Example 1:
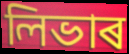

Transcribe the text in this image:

লিভাৰ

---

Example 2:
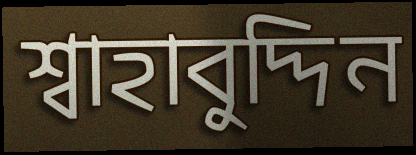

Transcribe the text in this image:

শ্বাহাবুদ্দিন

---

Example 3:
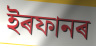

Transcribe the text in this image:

ইৰফানৰ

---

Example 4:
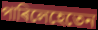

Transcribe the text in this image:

পাৰিলেহেতেন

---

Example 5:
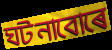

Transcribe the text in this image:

ঘটনাবোৰে